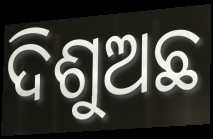
ଦିଶୁଅଛ